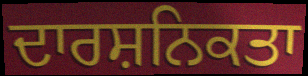
ਦਾਰਸ਼ਨਿਕਤਾ